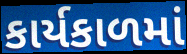
કાર્યકાળમાં